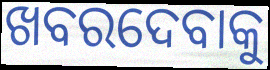
ଖବରଦେବାକୁ